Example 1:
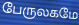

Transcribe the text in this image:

பேருலகமே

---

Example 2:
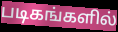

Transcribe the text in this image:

படிகங்களில்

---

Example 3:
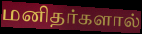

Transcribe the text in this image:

மனிதர்களால்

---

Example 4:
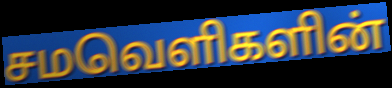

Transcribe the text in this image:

சமவெளிகளின்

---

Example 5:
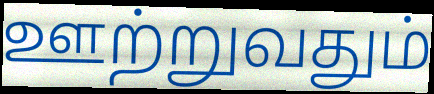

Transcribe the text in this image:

ஊற்றுவதும்